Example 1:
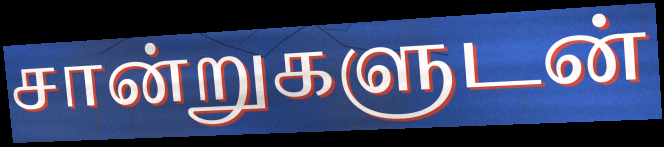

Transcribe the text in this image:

சான்றுகளுடன்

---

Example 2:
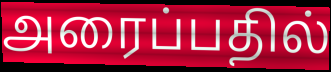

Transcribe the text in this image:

அரைப்பதில்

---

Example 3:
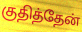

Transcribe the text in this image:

குதித்தேன்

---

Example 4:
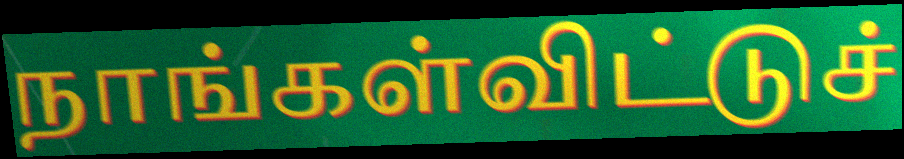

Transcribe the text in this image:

நாங்கள்விட்டுச்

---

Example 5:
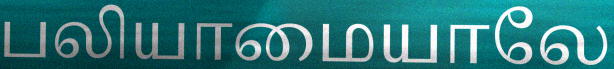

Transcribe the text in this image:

பலியாமையாலே